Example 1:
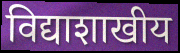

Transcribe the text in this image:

विद्याशाखीय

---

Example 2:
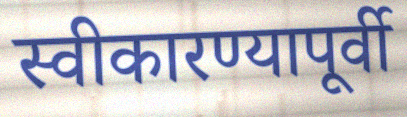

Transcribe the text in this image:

स्वीकारण्यापूर्वी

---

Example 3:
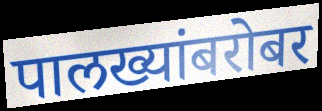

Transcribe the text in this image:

पालख्यांबरोबर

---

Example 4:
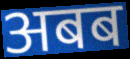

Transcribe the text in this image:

अबब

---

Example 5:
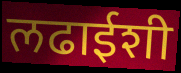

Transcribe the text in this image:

लढाईशी